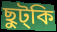
ছুট্কি